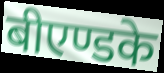
बीएण्डके